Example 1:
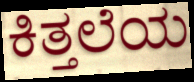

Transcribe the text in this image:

ಕಿತ್ತಲೆಯ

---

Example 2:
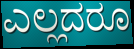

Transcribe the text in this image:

ಎಲ್ಲದರೂ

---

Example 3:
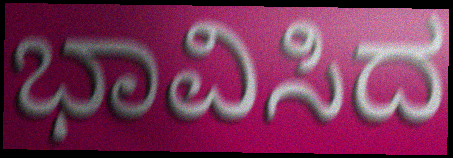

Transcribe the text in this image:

ಭಾವಿಸಿದ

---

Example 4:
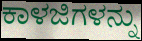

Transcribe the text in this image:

ಕಾಳಜಿಗಳನ್ನು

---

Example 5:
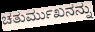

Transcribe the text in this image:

ಚತುರ್ಮುಖನನ್ನು